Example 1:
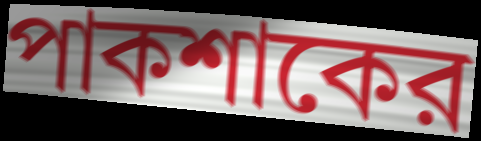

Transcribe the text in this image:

পাকশাকের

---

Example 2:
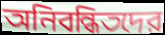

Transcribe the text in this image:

অনিবন্ধিতদের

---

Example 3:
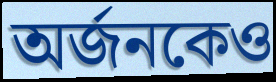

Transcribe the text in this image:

অর্জনকেও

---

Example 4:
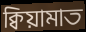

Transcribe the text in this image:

ক্বিয়ামাত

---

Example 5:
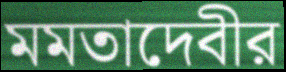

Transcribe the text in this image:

মমতাদেবীর